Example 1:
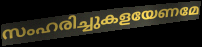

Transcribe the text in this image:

സംഹരിച്ചുകളയേണമേ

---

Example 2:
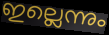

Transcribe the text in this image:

ഇല്ലെന്നും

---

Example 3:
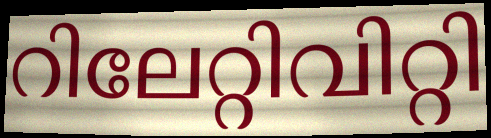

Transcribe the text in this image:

റിലേറ്റിവിറ്റി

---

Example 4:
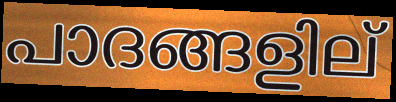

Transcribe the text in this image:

പാദങ്ങളില്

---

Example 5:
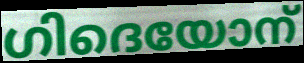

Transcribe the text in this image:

ഗിദെയോന്